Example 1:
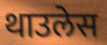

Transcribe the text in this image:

थाउलेस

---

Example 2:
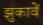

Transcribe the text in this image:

झुकावें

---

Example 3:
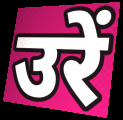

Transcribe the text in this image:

उरें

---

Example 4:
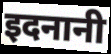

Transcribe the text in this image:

इदनानी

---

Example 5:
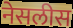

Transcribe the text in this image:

नेसलीस